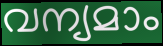
വന്യമാം